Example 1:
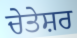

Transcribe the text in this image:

ਚੇਤੇਸ਼ਰ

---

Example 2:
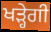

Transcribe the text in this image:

ਖੜ੍ਹੇਗੀ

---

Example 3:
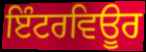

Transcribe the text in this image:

ਇੰਟਰਵਿਊਰ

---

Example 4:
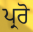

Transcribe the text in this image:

ਪ੍ਰਰੋ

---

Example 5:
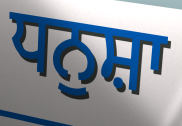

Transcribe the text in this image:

ਧਨੁਸ਼ਾ